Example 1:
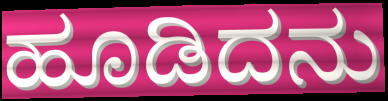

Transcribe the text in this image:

ಹೂಡಿದನು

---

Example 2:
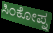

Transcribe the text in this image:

ಸಿಂಕೋಪ್ನ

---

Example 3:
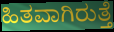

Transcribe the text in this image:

ಹಿತವಾಗಿರುತ್ತೆ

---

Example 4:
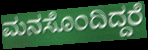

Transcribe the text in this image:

ಮನಸೊಂದಿದ್ದರೆ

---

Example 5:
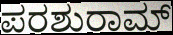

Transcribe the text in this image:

ಪರಶುರಾಮ್